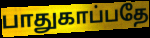
பாதுகாப்பதே